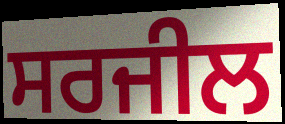
ਸਰਜੀਲ